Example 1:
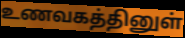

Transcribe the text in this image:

உணவகத்தினுள்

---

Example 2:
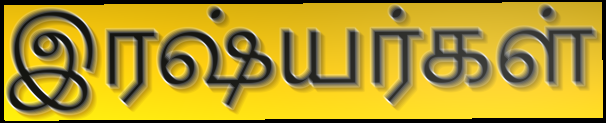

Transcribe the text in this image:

இரஷ்யர்கள்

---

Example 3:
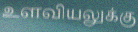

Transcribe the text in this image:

உளவியலுக்கு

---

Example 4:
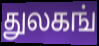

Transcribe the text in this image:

துலகங்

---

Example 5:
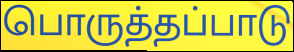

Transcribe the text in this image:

பொருத்தப்பாடு